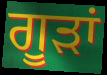
ਗੂੜਾਂ